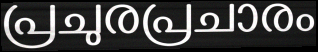
പ്രചുരപ്രചാരം